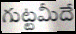
గుట్టమీదే